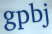
gpbj